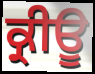
ਕ੍ਰੀਊ